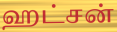
ஹட்சன்